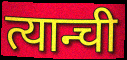
त्यान्ची